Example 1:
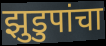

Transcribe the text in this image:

झुडुपांचा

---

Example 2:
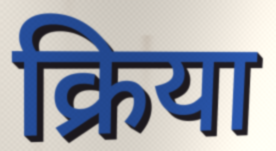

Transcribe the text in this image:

क्रिया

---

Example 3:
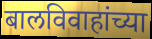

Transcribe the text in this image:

बालविवाहांच्या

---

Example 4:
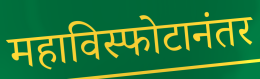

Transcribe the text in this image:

महाविस्फोटानंतर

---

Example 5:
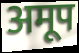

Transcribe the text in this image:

अमूप